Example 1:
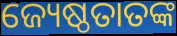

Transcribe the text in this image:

ଜ୍ୟେଷ୍ଠତାତଙ୍କ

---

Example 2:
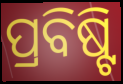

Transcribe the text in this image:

ପ୍ରବିଷ୍ଟି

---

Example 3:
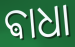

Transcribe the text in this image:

ଵାଧା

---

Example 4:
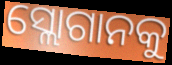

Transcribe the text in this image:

ସ୍ଲୋଗାନକୁ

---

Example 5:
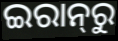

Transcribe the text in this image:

ଇରାନ୍‌ରୁ